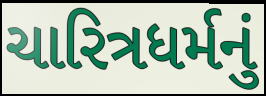
ચારિત્રધર્મનું